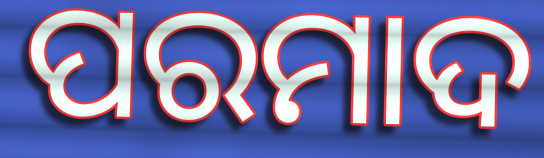
ପରମାଦ